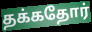
தக்கதோர்